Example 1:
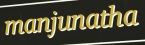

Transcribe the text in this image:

manjunatha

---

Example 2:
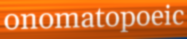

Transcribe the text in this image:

onomatopoeic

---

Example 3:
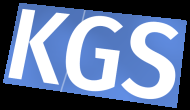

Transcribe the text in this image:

KGS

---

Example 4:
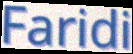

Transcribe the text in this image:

Faridi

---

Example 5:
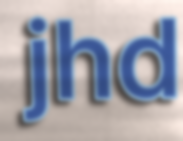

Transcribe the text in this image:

jhd